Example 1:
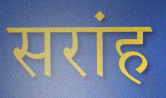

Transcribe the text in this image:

सरांह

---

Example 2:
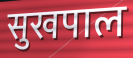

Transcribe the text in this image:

सुखपाल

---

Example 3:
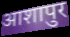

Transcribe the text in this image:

आशापुर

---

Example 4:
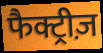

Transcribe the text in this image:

फैक्ट्रीज़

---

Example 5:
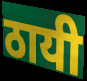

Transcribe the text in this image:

ठायी